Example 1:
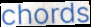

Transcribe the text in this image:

chords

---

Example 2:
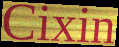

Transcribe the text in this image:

Cixin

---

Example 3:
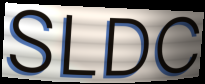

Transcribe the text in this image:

SLDC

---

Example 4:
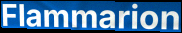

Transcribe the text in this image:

Flammarion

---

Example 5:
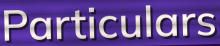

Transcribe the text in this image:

Particulars